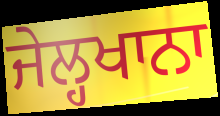
ਜੇਲ੍ਹਖਾਨਾ